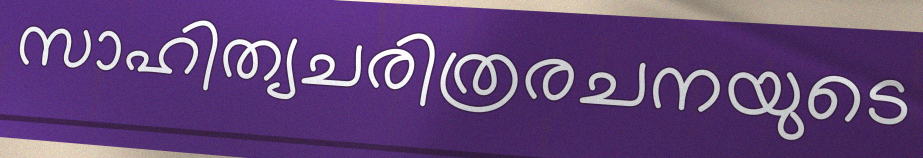
സാഹിത്യചരിത്രരചനയുടെ